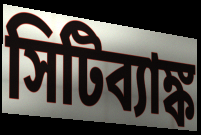
সিটিব্যাঙ্ক